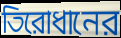
তিরোধানের